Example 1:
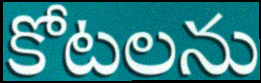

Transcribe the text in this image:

కోటలను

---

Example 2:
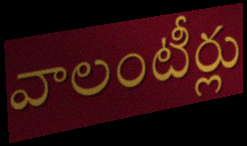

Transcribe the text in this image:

వాలంటీర్లు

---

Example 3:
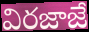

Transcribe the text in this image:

విరజాజే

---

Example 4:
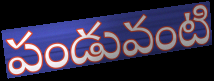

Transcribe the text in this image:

పండువంటి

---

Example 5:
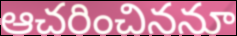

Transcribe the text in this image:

ఆచరించిననూ